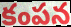
కంపన